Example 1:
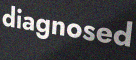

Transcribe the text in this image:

diagnosed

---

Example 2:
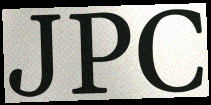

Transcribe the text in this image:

JPC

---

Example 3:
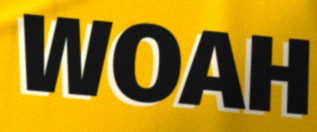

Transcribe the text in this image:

WOAH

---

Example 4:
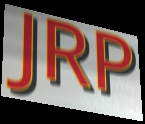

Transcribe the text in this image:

JRP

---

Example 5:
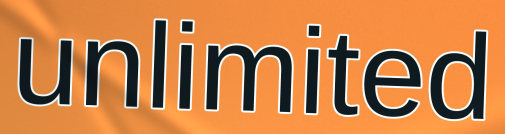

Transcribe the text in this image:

unlimited